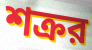
শক্রর